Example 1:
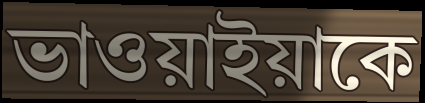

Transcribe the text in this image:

ভাওয়াইয়াকে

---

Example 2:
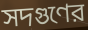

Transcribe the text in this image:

সদগুণের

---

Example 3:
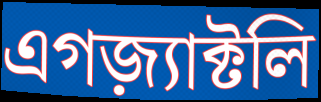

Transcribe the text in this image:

এগজ়্যাক্টলি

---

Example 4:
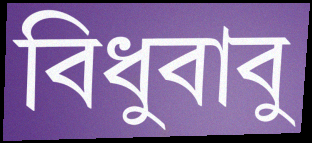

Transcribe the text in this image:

বিধুবাবু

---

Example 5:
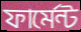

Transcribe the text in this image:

ফার্মেন্ট